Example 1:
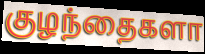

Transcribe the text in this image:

குழந்தைகளா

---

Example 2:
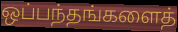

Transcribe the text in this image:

ஒப்பந்தங்களைத்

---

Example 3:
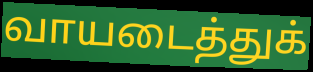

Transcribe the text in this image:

வாயடைத்துக்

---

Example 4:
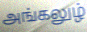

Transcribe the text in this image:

அங்கலுழ்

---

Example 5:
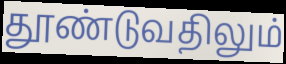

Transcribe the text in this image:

தூண்டுவதிலும்